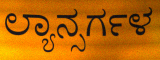
ಲ್ಯಾನ್ಸರ್ಗಳ